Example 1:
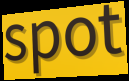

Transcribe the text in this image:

spot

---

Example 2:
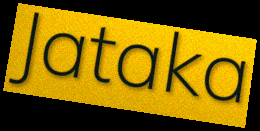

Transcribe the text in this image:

Jataka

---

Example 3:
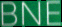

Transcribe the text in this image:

BNE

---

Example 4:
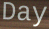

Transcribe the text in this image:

Day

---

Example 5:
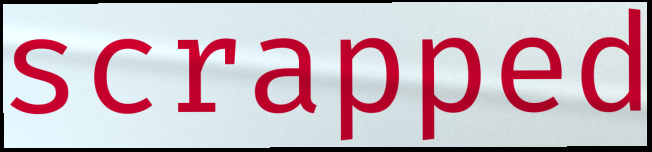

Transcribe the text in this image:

scrapped